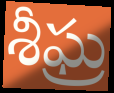
శీఘ్ర